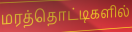
மரத்தொட்டிகளில்